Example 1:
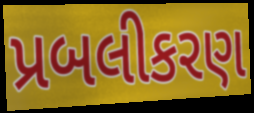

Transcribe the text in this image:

પ્રબલીકરણ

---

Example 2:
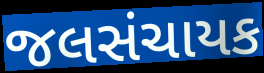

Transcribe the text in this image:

જલસંચાયક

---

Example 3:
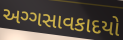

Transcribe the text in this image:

અગ્ગસાવકાદયો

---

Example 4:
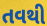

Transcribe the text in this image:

તવથી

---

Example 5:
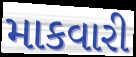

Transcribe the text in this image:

માકવારી